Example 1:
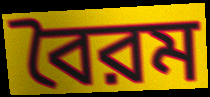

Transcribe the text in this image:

বৈরম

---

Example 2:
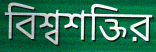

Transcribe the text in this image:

বিশ্বশক্তির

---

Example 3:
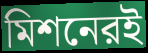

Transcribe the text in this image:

মিশনেরই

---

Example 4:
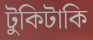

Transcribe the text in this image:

টুকিটাকি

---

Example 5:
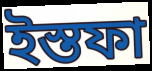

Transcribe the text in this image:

ইস্তফা